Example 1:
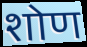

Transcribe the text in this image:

शोण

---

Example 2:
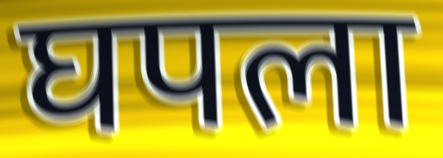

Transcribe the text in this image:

घपला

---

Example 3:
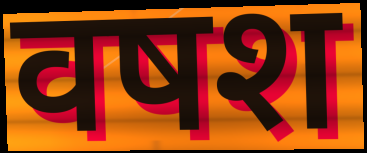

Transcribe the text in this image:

वषश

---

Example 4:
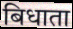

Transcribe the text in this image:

बिधाता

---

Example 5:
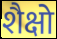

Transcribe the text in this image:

शैक्षो